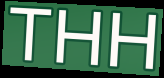
THH